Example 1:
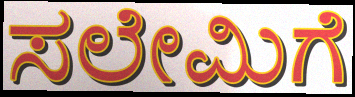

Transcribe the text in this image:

ಸಲೇಮಿಗೆ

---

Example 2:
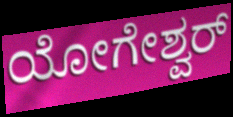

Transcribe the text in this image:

ಯೋಗೇಶ್ವರ್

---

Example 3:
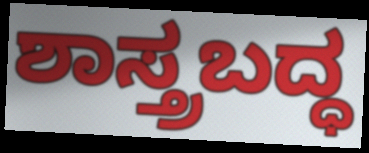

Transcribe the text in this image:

ಶಾಸ್ತ್ರಬದ್ಧ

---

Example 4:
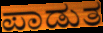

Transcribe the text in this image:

ಪಾಡುತ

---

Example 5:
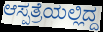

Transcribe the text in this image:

ಆಸ್ಪತ್ರೆಯಲ್ಲಿದ್ದ